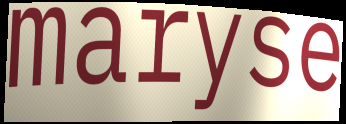
maryse